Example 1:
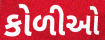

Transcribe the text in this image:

કોળીઓ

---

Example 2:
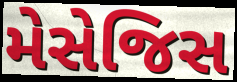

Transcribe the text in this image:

મેસેજિસ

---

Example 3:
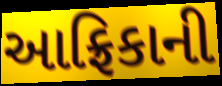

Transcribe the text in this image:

આફ્રિકાની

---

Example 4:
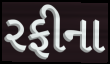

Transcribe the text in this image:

રફીના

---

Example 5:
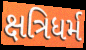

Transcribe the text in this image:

ક્ષત્રિધર્મ